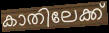
കാതിലേക്ക്